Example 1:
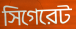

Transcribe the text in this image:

সিগেরেট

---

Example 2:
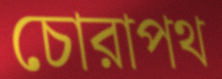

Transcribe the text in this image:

চোরাপথ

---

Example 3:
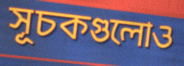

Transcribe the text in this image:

সূচকগুলোও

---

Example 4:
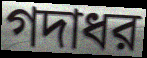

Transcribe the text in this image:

গদাধর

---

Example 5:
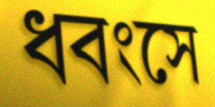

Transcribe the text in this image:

ধবংসে